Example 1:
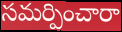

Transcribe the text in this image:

సమర్పించారా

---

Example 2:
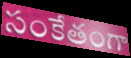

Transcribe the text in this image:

సంకేతంగా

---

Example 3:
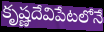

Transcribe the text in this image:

కృష్ణదేవిపేటలోనే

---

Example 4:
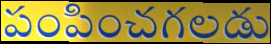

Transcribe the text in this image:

పంపించగలడు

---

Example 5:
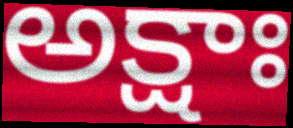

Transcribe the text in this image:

అక్షాః